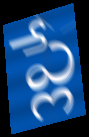
ప్లే